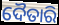
ଦୈତାରି